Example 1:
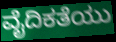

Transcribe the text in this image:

ವೈದಿಕತೆಯು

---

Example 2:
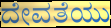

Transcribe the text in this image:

ದೇವತೆಯು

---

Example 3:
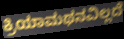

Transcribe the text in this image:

ಕ್ರಿಯಾಮಥನವಿಲ್ಲದೆ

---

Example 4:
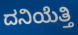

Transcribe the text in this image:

ದನಿಯೆತ್ತಿ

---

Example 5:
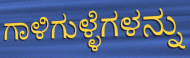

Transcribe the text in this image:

ಗಾಳಿಗುಳ್ಳೆಗಳನ್ನು